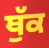
ਥੁੱਕ